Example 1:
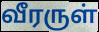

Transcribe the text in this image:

வீரருள்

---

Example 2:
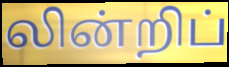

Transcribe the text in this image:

லின்றிப்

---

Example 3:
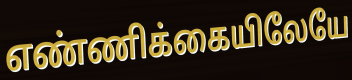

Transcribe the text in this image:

எண்ணிக்கையிலேயே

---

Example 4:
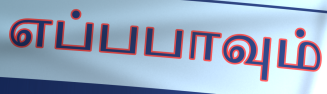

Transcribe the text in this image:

எப்பபாவும்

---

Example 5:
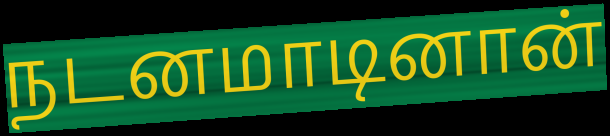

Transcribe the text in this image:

நடனமாடினான்